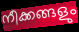
നീക്കങ്ങളും